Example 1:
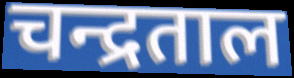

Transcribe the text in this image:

चन्द्रताल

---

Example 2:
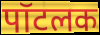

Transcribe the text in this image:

पॉटलक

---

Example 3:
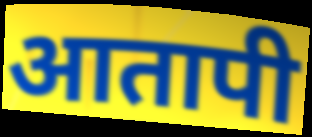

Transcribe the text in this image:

आतापी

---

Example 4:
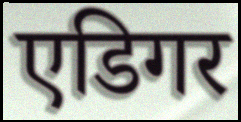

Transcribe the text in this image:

एडिगर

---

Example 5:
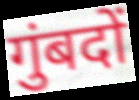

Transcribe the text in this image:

गुंबदों